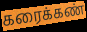
கரைக்கண்